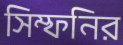
সিম্ফনির